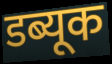
डब्यूक